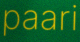
paari